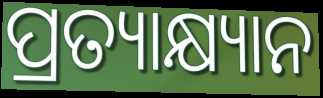
ପ୍ରତ୍ୟାକ୍ଷ୍ୟାନ